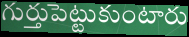
గుర్తుపెట్టుకుంటారు